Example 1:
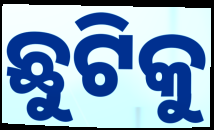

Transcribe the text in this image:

ଛୁଟିକୁ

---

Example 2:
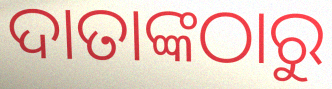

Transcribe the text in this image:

ଦାତାଙ୍କଠାରୁ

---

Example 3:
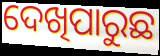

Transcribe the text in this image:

ଦେଖିପାରୁଛ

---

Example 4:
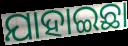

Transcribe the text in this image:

ଯାହାଇଛା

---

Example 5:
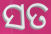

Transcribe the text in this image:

ସତ